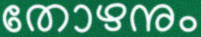
തോഴനും